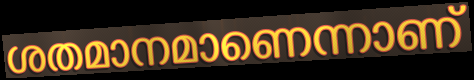
ശതമാനമാണെന്നാണ്